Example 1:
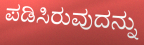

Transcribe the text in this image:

ಪಡಿಸಿರುವುದನ್ನು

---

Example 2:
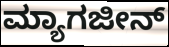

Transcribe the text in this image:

ಮ್ಯಾಗಜೀನ್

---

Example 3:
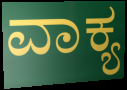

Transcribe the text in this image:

ವಾಕ್ಯ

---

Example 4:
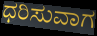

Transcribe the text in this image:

ಧರಿಸುವಾಗ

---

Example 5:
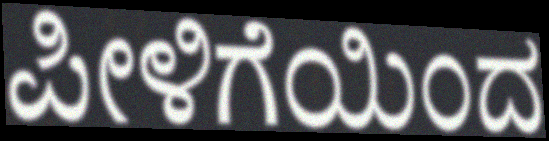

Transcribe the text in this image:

ಪೀಳಿಗೆಯಿಂದ